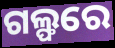
ଗଲ୍ଫରେ